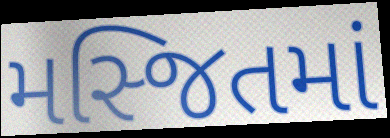
મસ્જિતમાં